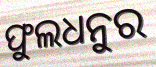
ଫୁଲଧନୁର